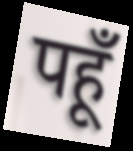
पहूँ